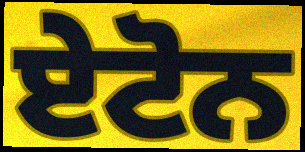
ਏਟੋਨ